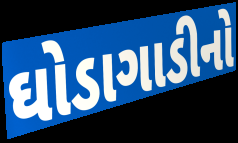
ઘોડાગાડીનો